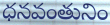
ధనవంతునిం